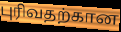
புரிவதற்கான